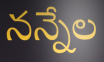
నన్నేల